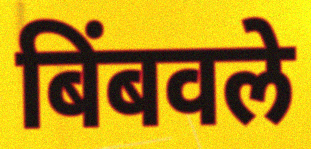
बिंबवले